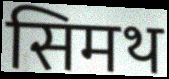
सिमथ